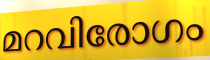
മറവിരോഗം